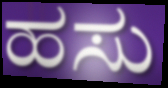
ಹಸು